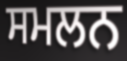
ਸਮਲਨ